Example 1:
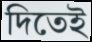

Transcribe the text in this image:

দিতেই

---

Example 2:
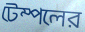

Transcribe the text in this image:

টেম্পলের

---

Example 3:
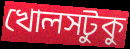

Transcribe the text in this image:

খোলসটুকু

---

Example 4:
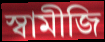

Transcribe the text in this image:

স্বামীজি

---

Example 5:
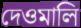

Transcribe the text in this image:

দেওমালি